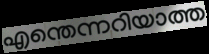
എന്തെന്നറിയാത്ത